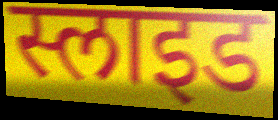
स्लाइड